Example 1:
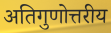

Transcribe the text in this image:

अतिगुणोत्तरीय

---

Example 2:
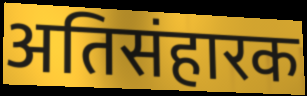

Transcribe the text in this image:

अतिसंहारक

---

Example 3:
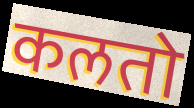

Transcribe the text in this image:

कलतो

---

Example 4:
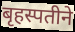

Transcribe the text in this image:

बृहस्पतीने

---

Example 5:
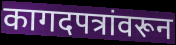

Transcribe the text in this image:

कागदपत्रांवरून